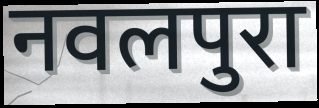
नवलपुरा